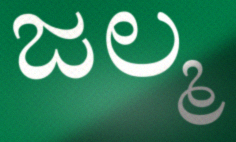
ಜಲ್ಮ